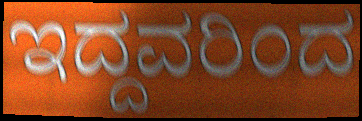
ಇದ್ದವರಿಂದ